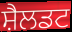
ਸ਼ੈਲਡਟ